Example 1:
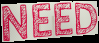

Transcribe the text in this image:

NEED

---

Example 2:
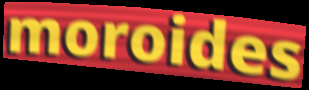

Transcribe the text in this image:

moroides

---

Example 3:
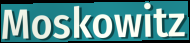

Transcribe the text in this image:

Moskowitz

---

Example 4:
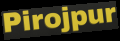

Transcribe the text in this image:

Pirojpur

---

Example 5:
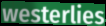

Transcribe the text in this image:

westerlies